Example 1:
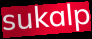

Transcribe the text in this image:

sukalp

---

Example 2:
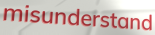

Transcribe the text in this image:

misunderstand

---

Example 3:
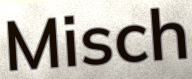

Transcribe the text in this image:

Misch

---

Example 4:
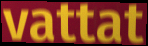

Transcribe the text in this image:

vattat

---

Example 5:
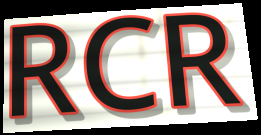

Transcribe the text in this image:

RCR